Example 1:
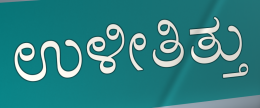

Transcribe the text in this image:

ಉಳೀತಿತ್ತು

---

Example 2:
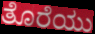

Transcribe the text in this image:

ತೊರೆಯು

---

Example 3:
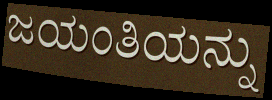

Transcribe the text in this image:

ಜಯಂತಿಯನ್ನು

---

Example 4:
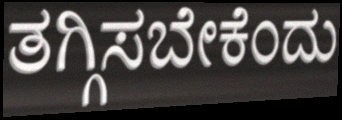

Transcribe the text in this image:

ತಗ್ಗಿಸಬೇಕೆಂದು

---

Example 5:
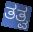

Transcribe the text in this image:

ತತ್ವ